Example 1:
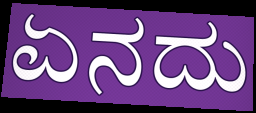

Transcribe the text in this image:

ಏನದು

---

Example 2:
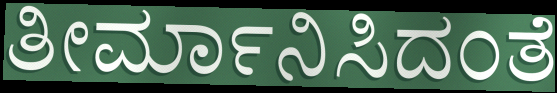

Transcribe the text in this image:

ತೀರ್ಮಾನಿಸಿದಂತೆ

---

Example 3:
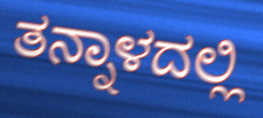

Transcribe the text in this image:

ತನ್ನಾಳದಲ್ಲಿ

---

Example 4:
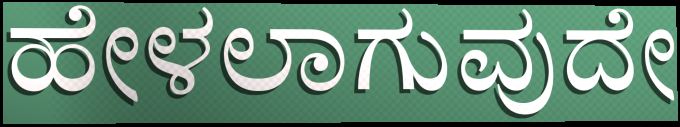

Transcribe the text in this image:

ಹೇಳಲಾಗುವುದೇ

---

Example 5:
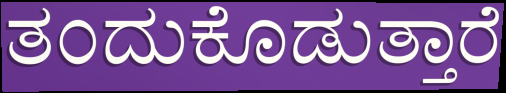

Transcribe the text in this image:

ತಂದುಕೊಡುತ್ತಾರೆ